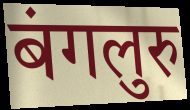
बंगलुरु